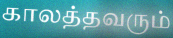
காலத்தவரும்